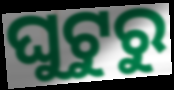
ଘୁଟୁରୁ